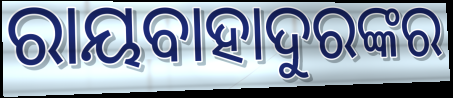
ରାୟବାହାଦୁରଙ୍କର